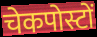
चेकपोस्टों